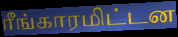
ரீங்காரமிட்டன